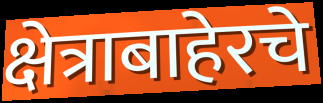
क्षेत्राबाहेरचे